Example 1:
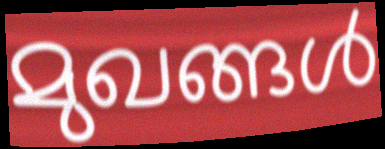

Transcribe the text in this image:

മുഖങ്ങൾ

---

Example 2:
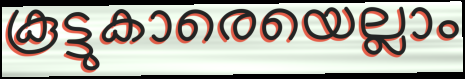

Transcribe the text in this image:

കൂട്ടുകാരെയെല്ലാം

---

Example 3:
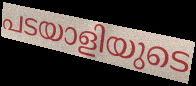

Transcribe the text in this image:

പടയാളിയുടെ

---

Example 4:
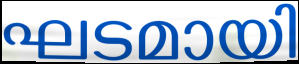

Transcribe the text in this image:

ഘടമായി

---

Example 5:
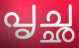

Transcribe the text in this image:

പൃച്ഛ